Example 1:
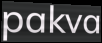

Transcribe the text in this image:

pakva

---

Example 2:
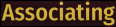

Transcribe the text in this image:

Associating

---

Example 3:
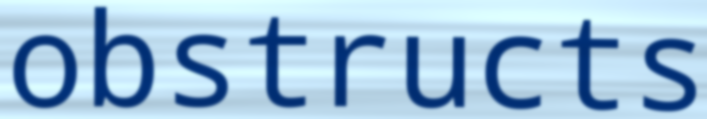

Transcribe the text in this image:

obstructs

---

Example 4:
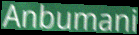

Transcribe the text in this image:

Anbumani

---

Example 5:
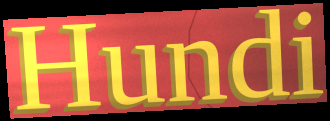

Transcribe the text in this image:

Hundi